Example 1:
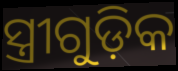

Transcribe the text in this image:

ସ୍ତ୍ରୀଗୁଡ଼ିକ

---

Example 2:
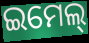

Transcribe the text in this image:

ଇମେଲ୍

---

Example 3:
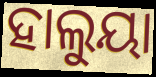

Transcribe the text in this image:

ହାଲୁୟା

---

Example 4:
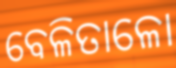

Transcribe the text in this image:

ବେଳିତାଳୋ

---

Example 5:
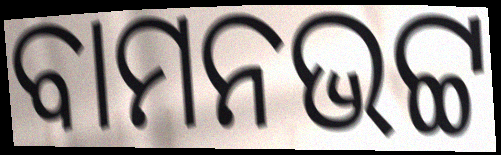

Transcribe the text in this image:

ବାମନଭଟ୍ଟ